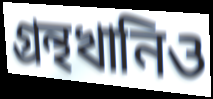
গ্রন্থখানিও